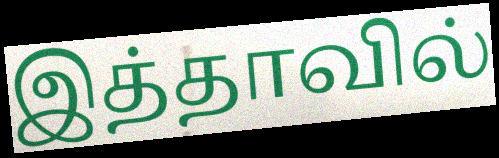
இத்தாவில்